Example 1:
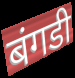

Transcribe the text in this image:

बंगडी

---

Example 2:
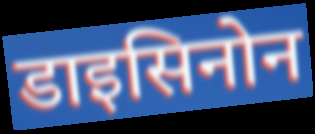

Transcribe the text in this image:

डाइसिनोन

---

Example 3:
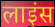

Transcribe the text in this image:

लाइंस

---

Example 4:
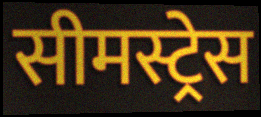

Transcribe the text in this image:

सीमस्ट्रेस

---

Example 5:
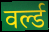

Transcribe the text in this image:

वर्ल्ड